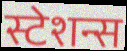
स्टेशन्स